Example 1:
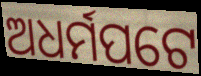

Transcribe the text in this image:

ଅଧର୍ମପଟେ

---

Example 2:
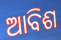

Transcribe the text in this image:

ଆବିଶ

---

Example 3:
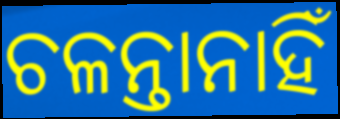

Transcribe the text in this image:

ଚଳନ୍ତାନାହିଁ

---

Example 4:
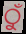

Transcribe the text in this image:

ଠୁଁ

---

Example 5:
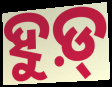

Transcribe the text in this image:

ହୁଡ଼୍